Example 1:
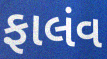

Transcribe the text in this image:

ફાલંવ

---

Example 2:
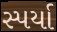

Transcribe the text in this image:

સ્પર્યા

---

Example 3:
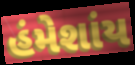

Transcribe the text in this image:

હંમેશાંય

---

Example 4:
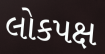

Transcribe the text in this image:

લોકપક્ષ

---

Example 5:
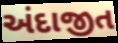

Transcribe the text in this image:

અંદાજીત